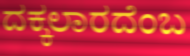
ದಕ್ಕಲಾರದೆಂಬ